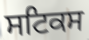
ਸਟਿਕਸ